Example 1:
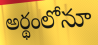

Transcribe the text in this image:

అర్థంలోనూ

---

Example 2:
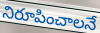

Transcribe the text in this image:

నిరూపించాలనే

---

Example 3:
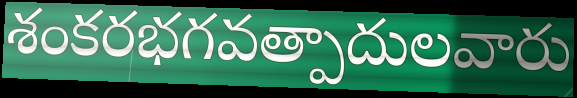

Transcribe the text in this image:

శంకరభగవత్పాదులవారు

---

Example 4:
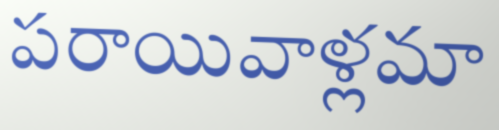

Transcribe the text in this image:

పరాయివాళ్లమా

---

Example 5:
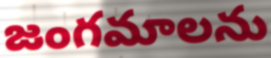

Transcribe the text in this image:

జంగమాలను